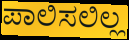
ಪಾಲಿಸಲಿಲ್ಲ